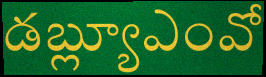
డబ్ల్యూఎంవో